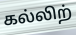
கல்லிற்